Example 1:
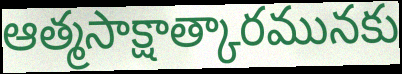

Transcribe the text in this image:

ఆత్మసాక్షాత్కారమునకు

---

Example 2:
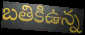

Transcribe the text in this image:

బతికిఉన్న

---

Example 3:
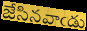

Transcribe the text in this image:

జేసినవాఁడు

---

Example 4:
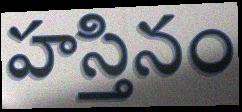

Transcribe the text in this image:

హస్తినం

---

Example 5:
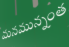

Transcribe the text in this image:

మనమున్నంత